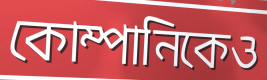
কোম্পানিকেও